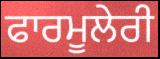
ਫਾਰਮੂਲੇਰੀ